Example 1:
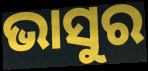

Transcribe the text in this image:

ଭାସୁର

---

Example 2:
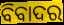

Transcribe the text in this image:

ବିବାଦର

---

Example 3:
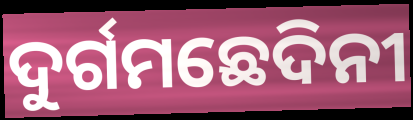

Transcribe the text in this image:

ଦୁର୍ଗମଛେଦିନୀ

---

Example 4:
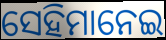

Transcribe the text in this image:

ସେହିମାନେଇ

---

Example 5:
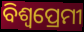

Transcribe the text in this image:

ବିଶ୍ଵପ୍ରେମୀ